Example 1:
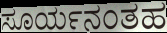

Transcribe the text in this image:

ಸೂರ್ಯನಂತಹ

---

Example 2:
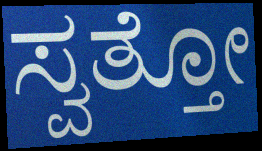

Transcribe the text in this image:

ಸ್ವತ್ತೋ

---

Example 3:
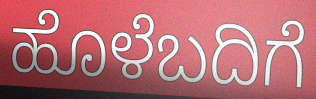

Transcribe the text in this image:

ಹೊಳೆಬದಿಗೆ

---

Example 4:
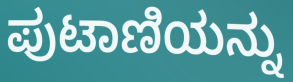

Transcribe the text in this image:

ಪುಟಾಣಿಯನ್ನು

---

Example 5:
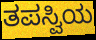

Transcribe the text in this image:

ತಪಸ್ವಿಯ